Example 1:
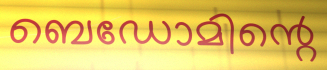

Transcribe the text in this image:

ബെഡോമിന്റെ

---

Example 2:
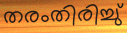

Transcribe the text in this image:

തരംതിരിച്ചു്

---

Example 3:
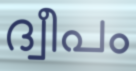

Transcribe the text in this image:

ദ്വീപം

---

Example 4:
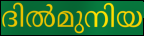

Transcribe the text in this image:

ദിൽമുനിയ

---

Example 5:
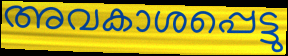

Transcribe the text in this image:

അവകാശപ്പെട്ടു